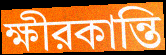
ক্ষীরকান্তি